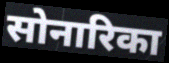
सोनारिका